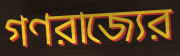
গণরাজ্যের